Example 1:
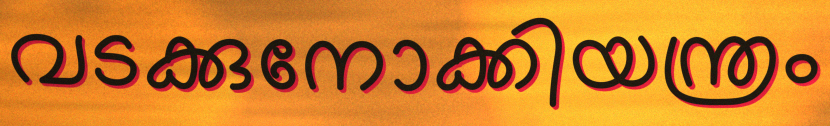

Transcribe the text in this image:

വടക്കുനോക്കിയന്ത്രം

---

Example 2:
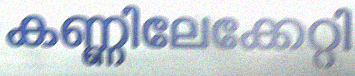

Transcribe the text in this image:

കണ്ണിലേക്കേറ്റി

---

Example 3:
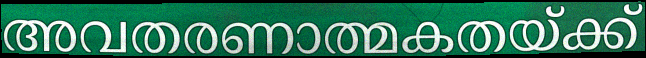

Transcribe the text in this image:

അവതരണാത്മകതയ്ക്ക്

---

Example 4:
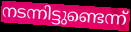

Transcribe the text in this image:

നടന്നിട്ടുണ്ടെന്ന്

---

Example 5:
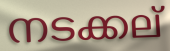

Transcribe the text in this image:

നടക്കല്